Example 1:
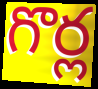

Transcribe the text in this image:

గొర్ల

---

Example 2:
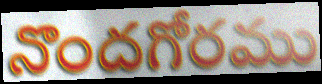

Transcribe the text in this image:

నొందగోరము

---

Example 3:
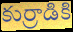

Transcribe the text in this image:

కుర్రాడికి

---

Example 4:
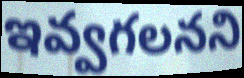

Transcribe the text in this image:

ఇవ్వగలనని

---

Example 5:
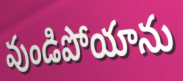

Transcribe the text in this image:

వుండిపోయాను